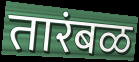
तारंबळ